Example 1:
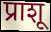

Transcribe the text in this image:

प्राशू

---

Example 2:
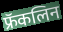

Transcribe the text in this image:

फ्रॅकलिन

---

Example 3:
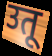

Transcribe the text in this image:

उतू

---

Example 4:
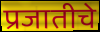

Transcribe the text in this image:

प्रजातीचे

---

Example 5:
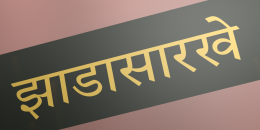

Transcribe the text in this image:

झाडासारखे